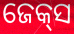
ଜେକ୍‍ସ